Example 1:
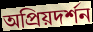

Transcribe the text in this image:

অপ্রিয়দর্শন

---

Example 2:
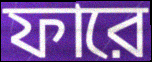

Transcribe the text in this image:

ফারে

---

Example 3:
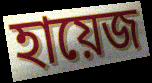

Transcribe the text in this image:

হায়েজ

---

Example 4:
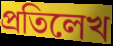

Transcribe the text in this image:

প্রতিলেখ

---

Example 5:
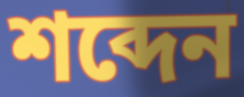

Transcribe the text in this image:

শব্দেন